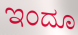
ಇಂದೂ